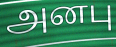
அனபு